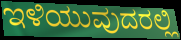
ಇಳಿಯುವುದರಲ್ಲಿ